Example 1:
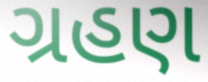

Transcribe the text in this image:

ગ્રહણ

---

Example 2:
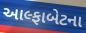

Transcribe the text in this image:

આલ્ફાબેટના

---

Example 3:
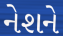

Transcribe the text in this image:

નેશને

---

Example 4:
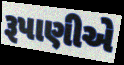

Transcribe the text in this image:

રૂપાણીએ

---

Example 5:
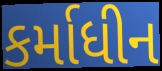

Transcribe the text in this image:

કર્માધીન